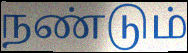
நண்டும்